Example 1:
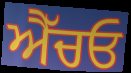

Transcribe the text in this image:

ਐੱਚਓ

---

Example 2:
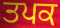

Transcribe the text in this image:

ਤਪਕ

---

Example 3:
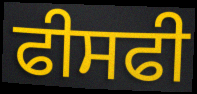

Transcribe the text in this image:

ਫੀਸਫੀ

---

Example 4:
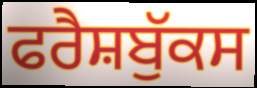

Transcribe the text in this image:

ਫਰੈਸ਼ਬੁੱਕਸ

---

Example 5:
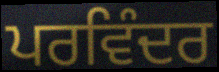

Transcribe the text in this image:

ਪਰਵਿੰਦਰ